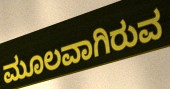
ಮೂಲವಾಗಿರುವ